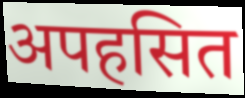
अपहसित